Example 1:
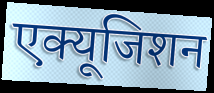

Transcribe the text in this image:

एक्यूजिशन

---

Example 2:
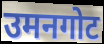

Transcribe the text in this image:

उमनगोट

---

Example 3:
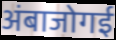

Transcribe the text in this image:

अंबाजोगई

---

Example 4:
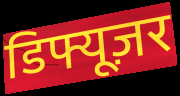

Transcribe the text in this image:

डिफ्यूज़र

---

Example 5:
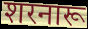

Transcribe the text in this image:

शरनारू